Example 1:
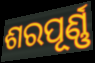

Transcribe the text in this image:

ଶରପୂର୍ଣ୍ଣ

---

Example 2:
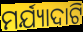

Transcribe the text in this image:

ମର୍ଯ୍ୟାଦାଟି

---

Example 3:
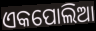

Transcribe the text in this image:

ଏକପୋଲିଆ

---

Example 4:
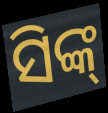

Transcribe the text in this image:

ସିଙ୍କ୍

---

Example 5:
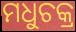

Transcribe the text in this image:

ମଧୁଚକ୍ର